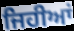
ਜਿਹੀਆਂ